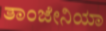
ತಾಂಜೇನಿಯಾ